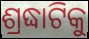
ଶ୍ରଦ୍ଧାଟିକୁ